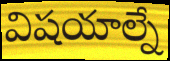
విషయాల్నే